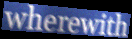
wherewith